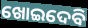
ଖୋଇଦେବି